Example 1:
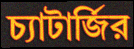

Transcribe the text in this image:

চ্যাটার্জির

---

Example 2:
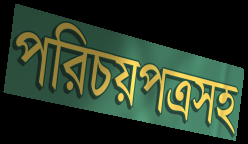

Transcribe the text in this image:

পরিচয়পত্রসহ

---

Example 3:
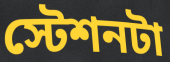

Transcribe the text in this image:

স্টেশনটা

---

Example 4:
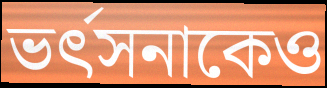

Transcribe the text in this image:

ভর্ৎসনাকেও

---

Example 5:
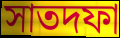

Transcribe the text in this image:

সাতদফা